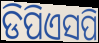
ଡିପିଏସପି